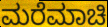
ಮರೆಮಾಚಿ